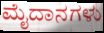
ಮೈದಾನಗಳು